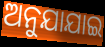
ଅନୁଯାଯାଇ